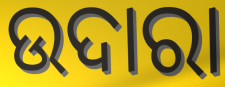
ଉଦାରା